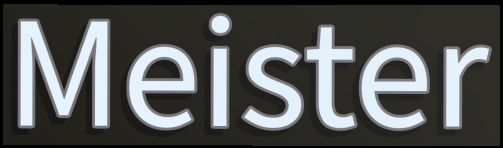
Meister